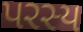
પરસ્ય